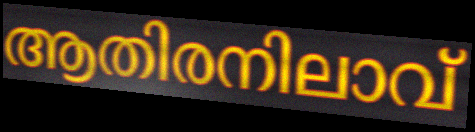
ആതിരനിലാവ്